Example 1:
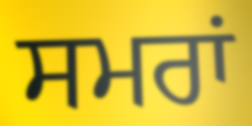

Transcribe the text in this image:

ਸਮਰਾਂ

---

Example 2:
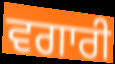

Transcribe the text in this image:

ਵਗਾਰੀ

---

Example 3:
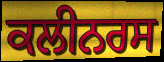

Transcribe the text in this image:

ਕਲੀਨਰਸ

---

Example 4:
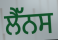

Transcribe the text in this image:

ਲੈੱਨਸ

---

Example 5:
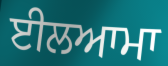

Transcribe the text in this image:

ਈਲਆਮਾ